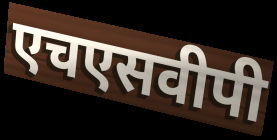
एचएसवीपी